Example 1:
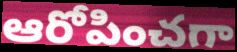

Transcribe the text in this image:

ఆరోపించగా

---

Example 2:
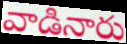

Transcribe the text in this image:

వాడినారు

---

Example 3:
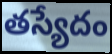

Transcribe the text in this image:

తస్యేదం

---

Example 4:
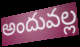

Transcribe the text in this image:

అందువల్ల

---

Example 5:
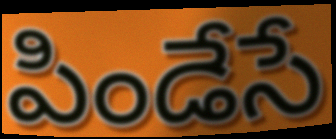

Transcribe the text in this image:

పిండేసే